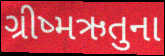
ગ્રીષ્મઋતુના